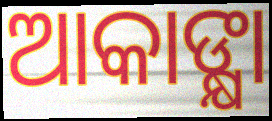
ଆକାଙ୍କ୍ଷା